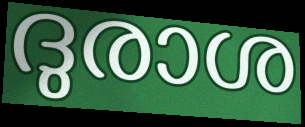
ദുരാശ